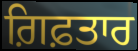
ਗ਼ਿਫ਼ਤਾਰ